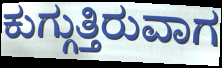
ಕುಗ್ಗುತ್ತಿರುವಾಗ